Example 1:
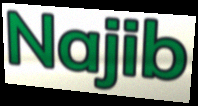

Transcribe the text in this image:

Najib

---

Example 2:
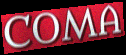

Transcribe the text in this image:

COMA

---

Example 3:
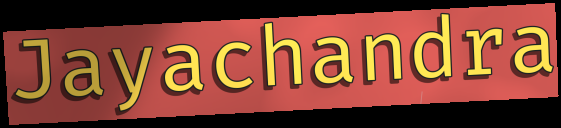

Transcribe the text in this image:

Jayachandra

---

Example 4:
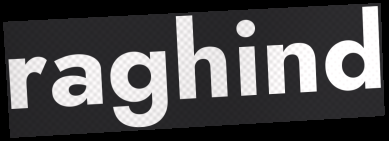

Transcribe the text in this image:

raghind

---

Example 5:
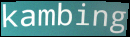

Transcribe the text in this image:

kambing